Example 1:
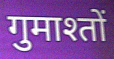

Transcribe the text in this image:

गुमाश्तों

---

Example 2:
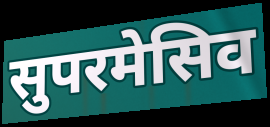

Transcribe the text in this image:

सुपरमेसिव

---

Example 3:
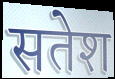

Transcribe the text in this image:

सतेश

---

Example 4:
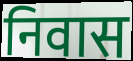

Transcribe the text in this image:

निवास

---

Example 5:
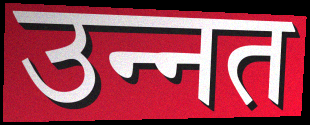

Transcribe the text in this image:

उन्‍नत